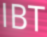
IBT